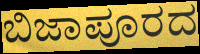
ಬಿಜಾಪೂರದ